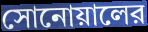
সোনোয়ালের